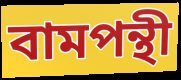
বামপন্থী